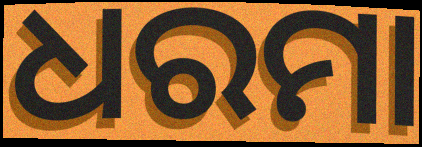
ଧରମା